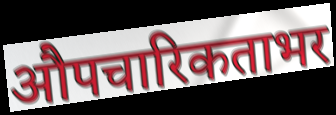
औपचारिकताभर